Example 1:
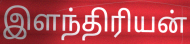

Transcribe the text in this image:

இளந்திரியன்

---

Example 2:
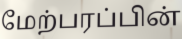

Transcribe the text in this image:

மேற்பரப்பின்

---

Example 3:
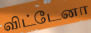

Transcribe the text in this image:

விட்டேனா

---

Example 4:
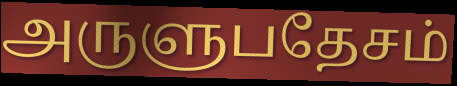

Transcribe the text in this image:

அருளுபதேசம்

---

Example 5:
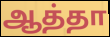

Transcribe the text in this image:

ஆத்தா